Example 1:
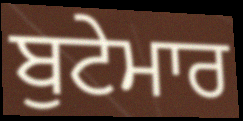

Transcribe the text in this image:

ਬੁਟੇਮਾਰ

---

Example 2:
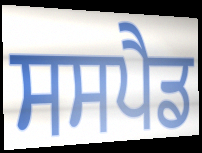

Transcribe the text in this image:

ਸਸਪੈਡ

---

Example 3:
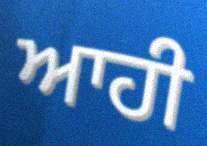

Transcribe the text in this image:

ਆਹੀ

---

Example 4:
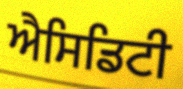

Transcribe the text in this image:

ਐਸਿਡਿਟੀ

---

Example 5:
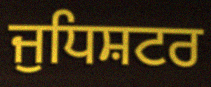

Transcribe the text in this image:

ਜੁਧਿਸ਼ਟਰ